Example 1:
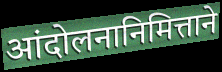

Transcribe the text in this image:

आंदोलनानिमित्ताने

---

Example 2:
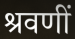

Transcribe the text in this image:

श्रवणीं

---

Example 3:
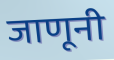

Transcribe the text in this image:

जाणूनी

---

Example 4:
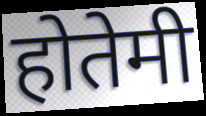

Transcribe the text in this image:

होतेमी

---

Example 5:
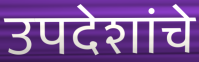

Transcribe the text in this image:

उपदेशांचे